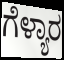
ಗೆಳ್ಯಾರ